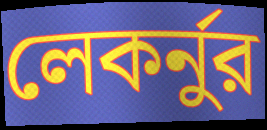
লেকর্নুর